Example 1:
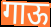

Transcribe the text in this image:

गाऊ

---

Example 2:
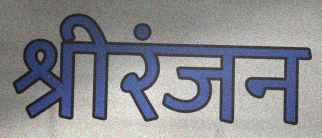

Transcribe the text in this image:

श्रीरंजन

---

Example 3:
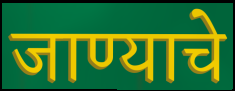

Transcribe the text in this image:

जाण्याचे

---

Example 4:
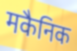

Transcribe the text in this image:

मकैनिक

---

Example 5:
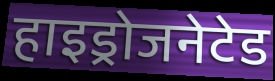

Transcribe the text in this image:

हाइड्रोजनेटेड